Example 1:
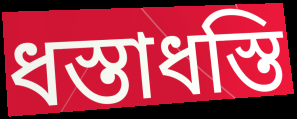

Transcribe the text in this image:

ধস্তাধস্তি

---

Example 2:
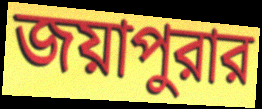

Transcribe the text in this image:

জয়াপুরার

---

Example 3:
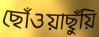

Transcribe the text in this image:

ছোঁওয়াছুঁয়ি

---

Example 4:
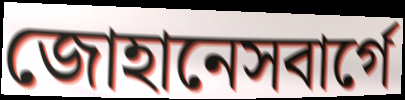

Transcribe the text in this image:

জোহানেসবার্গে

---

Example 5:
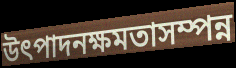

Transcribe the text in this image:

উৎপাদনক্ষমতাসম্পন্ন